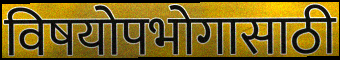
विषयोपभोगासाठी